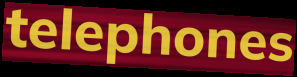
telephones